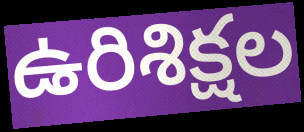
ఉరిశిక్షల